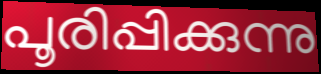
പൂരിപ്പിക്കുന്നു